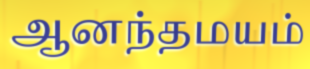
ஆனந்தமயம்